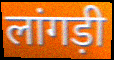
लांगड़ी